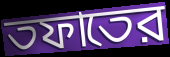
তফাতের